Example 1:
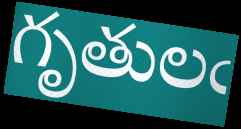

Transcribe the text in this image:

గృతులఁ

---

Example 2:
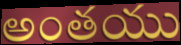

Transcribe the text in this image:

అంతయు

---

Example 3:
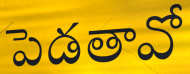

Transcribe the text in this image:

పెడతావో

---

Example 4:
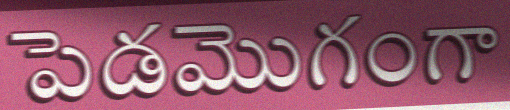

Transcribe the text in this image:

పెడమొగంగా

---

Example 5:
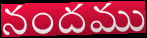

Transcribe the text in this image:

నందము